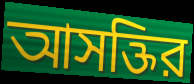
আসক্তির